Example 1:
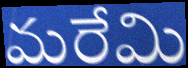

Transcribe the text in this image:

మరేమి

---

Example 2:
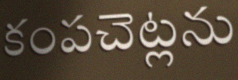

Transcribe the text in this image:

కంపచెట్లను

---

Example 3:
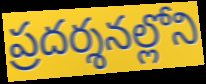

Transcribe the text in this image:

ప్రదర్శనల్లోని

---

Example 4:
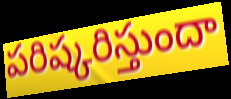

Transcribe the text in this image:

పరిష్కరిస్తుందా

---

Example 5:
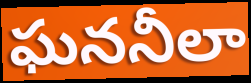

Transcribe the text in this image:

ఘననీలా